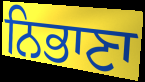
ਨਿਭਾਣਾ